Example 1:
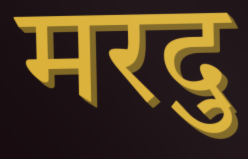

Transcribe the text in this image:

मरदु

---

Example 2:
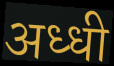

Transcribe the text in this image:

अध्धी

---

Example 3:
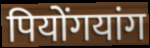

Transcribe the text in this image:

पियोंगयांग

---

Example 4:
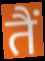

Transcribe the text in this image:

तैं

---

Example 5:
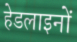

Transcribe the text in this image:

हेडलाइनों